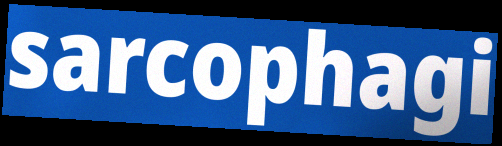
sarcophagi